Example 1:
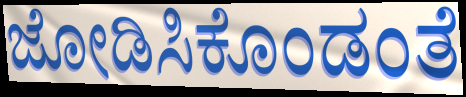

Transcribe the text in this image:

ಜೋಡಿಸಿಕೊಂಡಂತೆ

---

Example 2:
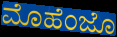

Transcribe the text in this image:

ಮೊಹೆಂಜೊ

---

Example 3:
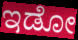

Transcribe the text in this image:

ಇಡೋ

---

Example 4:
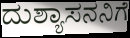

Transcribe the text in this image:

ದುಶ್ಯಾಸನನಿಗೆ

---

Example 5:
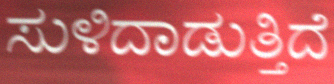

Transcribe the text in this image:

ಸುಳಿದಾಡುತ್ತಿದೆ